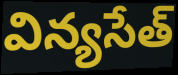
విన్యసేత్